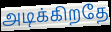
அடிக்கிறதே